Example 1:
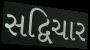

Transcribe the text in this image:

સદ્વિચાર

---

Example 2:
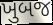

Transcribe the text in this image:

ખુબજ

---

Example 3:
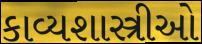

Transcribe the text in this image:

કાવ્યશાસ્ત્રીઓ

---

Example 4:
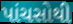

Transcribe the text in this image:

પાંચસોથી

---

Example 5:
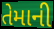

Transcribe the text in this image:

તેમાની